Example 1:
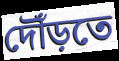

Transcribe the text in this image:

দৌঁড়তে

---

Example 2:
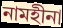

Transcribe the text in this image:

নামহীনা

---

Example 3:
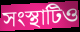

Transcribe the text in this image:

সংস্থাটিও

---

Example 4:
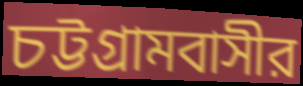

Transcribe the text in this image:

চট্টগ্রামবাসীর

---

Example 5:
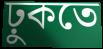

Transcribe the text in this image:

ঢ়ুকতে